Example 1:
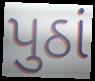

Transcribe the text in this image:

પુઠાં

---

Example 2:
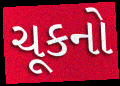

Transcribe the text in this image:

ચૂકનો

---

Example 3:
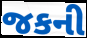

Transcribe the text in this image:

જકની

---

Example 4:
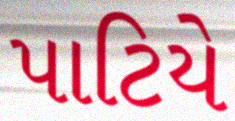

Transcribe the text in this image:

પાટિયે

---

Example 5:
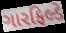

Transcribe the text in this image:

ગારફિલ્ડે